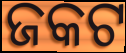
ଜକଟ